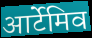
आर्टेमिव